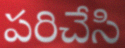
పరిచేసి